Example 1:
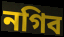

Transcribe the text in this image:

নগিব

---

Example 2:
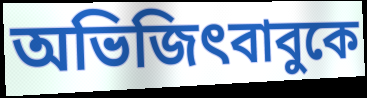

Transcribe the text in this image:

অভিজিৎবাবুকে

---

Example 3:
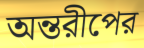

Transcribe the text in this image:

অন্তরীপের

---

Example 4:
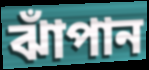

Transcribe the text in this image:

ঝাঁপান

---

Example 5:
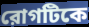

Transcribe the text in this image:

রোগটিকে